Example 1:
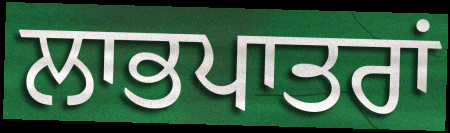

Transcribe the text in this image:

ਲਾਭਪਾਤਰਾਂ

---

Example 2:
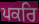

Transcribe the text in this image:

ਪਕਰਿ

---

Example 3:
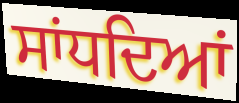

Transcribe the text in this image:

ਸਾਂਧਦਿਆਂ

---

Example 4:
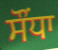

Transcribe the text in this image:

ਸੌਂਧਾ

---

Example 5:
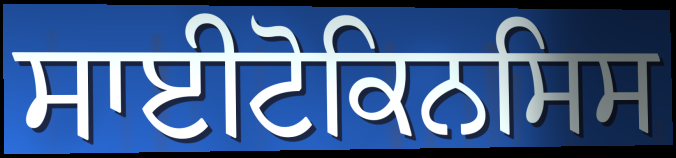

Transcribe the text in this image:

ਸਾਈਟੋਕਿਨਸਿਸ